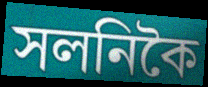
সলনিকৈ